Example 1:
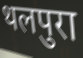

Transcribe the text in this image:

थलपुरा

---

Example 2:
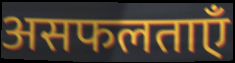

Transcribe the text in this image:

असफलताएँ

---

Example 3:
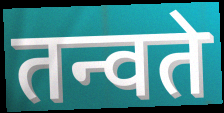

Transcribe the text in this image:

तन्वते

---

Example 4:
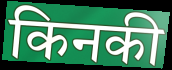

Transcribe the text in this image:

किनकी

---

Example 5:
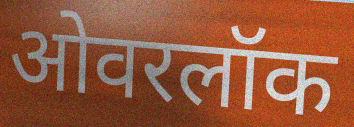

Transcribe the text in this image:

ओवरलॉक